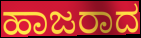
ಹಾಜರಾದ